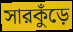
সারকুঁড়ে